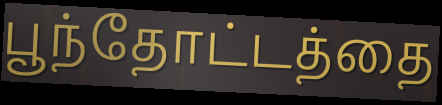
பூந்தோட்டத்தை